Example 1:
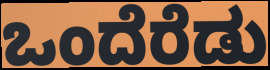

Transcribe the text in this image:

ಒಂದೆರೆಡು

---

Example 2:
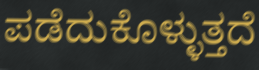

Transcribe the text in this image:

ಪಡೆದುಕೊಳ್ಳುತ್ತದೆ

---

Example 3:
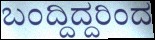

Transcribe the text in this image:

ಬಂದ್ದಿದ್ದರಿಂದ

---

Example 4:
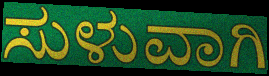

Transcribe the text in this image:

ಸುಳುವಾಗಿ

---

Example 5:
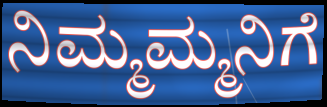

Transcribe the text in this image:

ನಿಮ್ಮಮ್ಮನಿಗೆ